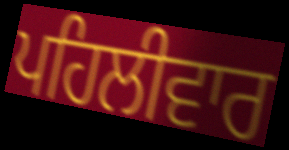
ਪਹਿਲੀਵਾਰ